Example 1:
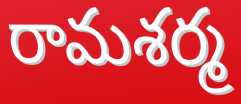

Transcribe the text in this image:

రామశర్మ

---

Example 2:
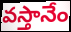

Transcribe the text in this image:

వస్తానేం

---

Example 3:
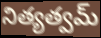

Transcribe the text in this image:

నిత్యత్వమ్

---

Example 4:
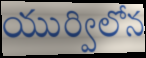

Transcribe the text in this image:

యుర్విలోన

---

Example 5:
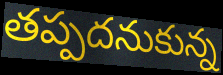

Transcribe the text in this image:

తప్పదనుకున్న